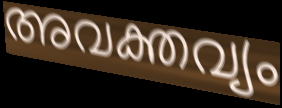
അവക്തവ്യം